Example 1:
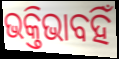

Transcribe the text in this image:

ଭକ୍ତିଭାବହିଁ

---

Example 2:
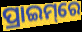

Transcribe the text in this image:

ପ୍ରାଇମ୍‌ରେ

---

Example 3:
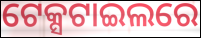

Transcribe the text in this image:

ଟେକ୍ସଟାଇଲରେ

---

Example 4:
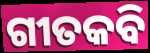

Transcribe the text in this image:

ଗୀତକବି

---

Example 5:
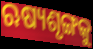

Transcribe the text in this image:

ଋଷ୍ୟଶୃଙ୍ଗକୁ